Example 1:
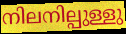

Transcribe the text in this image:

നിലനില്പുള്ളു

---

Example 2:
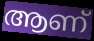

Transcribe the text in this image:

ആണ്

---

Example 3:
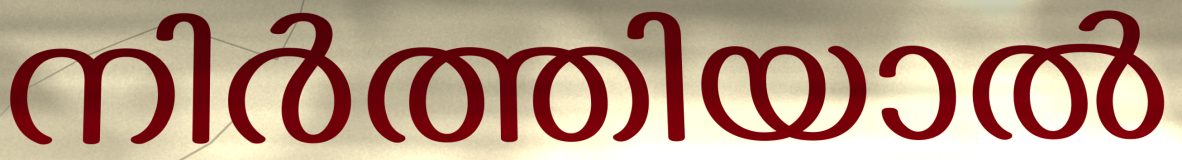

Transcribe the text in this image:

നിർത്തിയാൽ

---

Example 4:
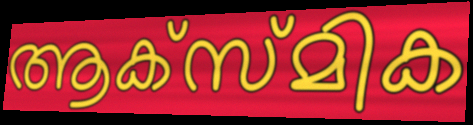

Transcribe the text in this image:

ആക്സ്മിക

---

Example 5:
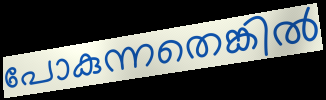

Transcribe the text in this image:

പോകുന്നതെങ്കിൽ